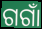
ଗଗାଁ